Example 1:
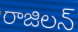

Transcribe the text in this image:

రాజిలన్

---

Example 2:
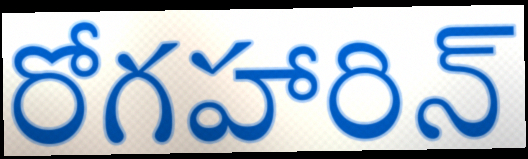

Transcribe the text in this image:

రోగహారిన్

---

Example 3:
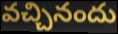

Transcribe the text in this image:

వచ్చినందు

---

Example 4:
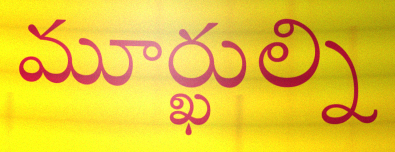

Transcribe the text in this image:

మూర్ఖుల్ని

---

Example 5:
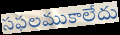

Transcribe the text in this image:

సఫలముకాలేదు